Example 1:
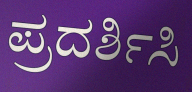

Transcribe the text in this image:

ಪ್ರದರ್ಶಿಸಿ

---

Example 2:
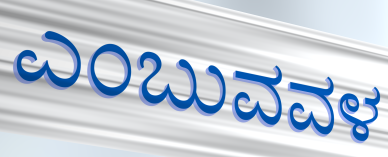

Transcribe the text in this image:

ಎಂಬುವವಳ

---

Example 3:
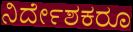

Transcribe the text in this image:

ನಿರ್ದೇಶಕರೂ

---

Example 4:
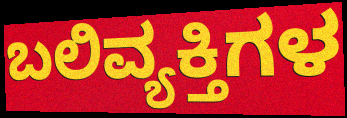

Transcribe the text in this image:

ಬಲಿವ್ಯಕ್ತಿಗಳ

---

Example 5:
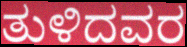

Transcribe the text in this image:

ತುಳಿದವರ